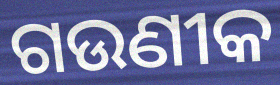
ଗଉଣୀକ